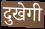
दुखेगी